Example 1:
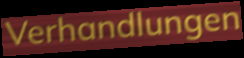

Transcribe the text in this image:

Verhandlungen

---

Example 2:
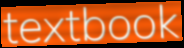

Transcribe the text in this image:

textbook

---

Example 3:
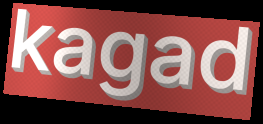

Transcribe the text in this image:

kagad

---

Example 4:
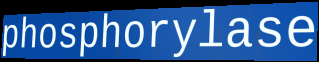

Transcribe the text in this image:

phosphorylase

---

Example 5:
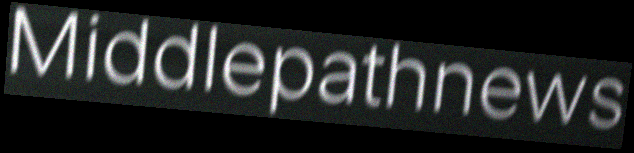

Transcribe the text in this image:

Middlepathnews